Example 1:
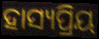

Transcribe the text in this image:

ହାସ୍ୟପ୍ରିୟ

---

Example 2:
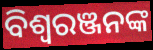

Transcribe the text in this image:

ବିଶ୍ବରଞ୍ଜନଙ୍କ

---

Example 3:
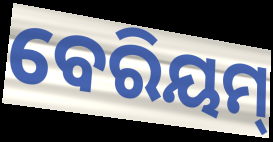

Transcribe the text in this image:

ବେରିୟମ୍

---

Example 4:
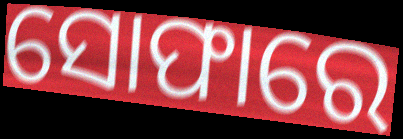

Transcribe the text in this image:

ସୋଫାରେ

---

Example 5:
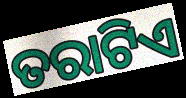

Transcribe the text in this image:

ତରାଟିଏ